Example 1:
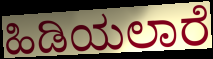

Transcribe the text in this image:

ಹಿಡಿಯಲಾರೆ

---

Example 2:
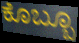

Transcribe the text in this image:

ಕೊಬ್ಬೂ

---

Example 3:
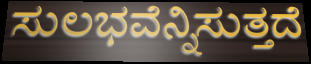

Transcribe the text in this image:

ಸುಲಭವೆನ್ನಿಸುತ್ತದೆ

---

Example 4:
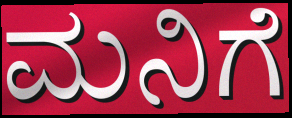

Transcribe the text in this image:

ಮನಿಗೆ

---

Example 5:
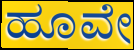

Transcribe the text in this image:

ಹೂವೇ